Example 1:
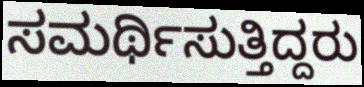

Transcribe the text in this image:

ಸಮರ್ಥಿಸುತ್ತಿದ್ದರು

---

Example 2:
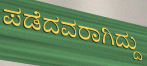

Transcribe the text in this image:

ಪಡೆದವರಾಗಿದ್ದು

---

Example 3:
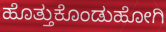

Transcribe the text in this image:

ಹೊತ್ತುಕೊಂಡುಹೋಗಿ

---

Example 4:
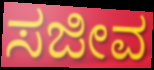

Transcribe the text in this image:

ಸಜೀವ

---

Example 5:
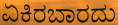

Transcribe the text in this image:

ಏಕಿರಬಾರದು